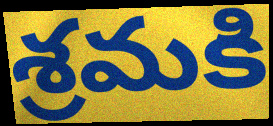
శ్రమకి